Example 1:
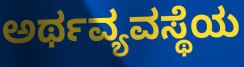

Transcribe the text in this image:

ಅರ್ಥವ್ಯವಸ್ಥೆಯ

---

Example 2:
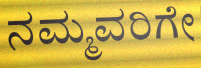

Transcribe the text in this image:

ನಮ್ಮವರಿಗೇ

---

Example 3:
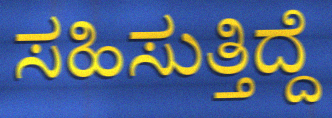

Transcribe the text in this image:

ಸಹಿಸುತ್ತಿದ್ದೆ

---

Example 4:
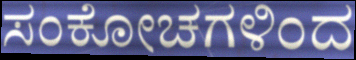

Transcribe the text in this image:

ಸಂಕೋಚಗಳಿಂದ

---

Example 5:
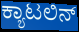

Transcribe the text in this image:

ಕ್ಯಾಟಲಿನ್